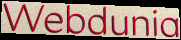
Webdunia